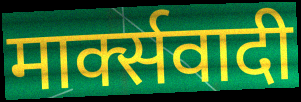
मार्क्‍सवादी